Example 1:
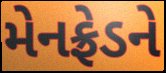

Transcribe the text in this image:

મેનફ્રેડને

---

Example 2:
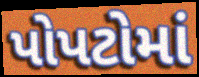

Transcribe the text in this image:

પોપટોમાં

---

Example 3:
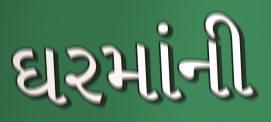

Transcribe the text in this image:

ઘરમાંની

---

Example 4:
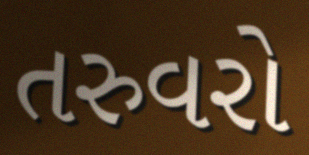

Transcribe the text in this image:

તરુવરો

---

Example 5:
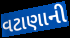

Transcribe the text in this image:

વટાણાની